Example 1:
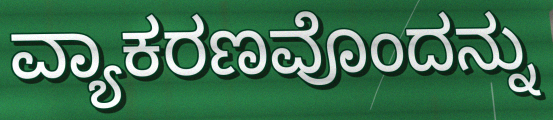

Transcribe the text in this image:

ವ್ಯಾಕರಣವೊಂದನ್ನು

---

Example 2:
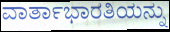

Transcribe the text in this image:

ವಾರ್ತಾಭಾರತಿಯನ್ನು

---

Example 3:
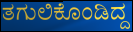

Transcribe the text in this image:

ತಗುಲಿಕೊಂಡಿದ್ದ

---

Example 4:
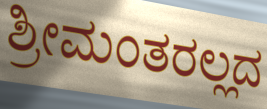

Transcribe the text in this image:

ಶ್ರೀಮಂತರಲ್ಲದ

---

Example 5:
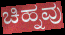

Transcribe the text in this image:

ಚಿಹ್ನವು